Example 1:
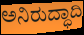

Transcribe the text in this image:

ಅನಿರುದ್ಧಾದಿ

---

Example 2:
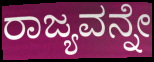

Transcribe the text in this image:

ರಾಜ್ಯವನ್ನೇ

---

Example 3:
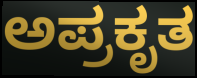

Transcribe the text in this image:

ಅಪ್ರಕೃತ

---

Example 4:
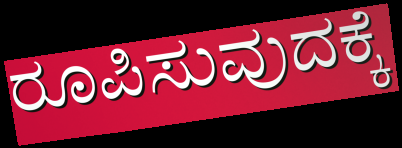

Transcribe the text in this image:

ರೂಪಿಸುವುದಕ್ಕೆ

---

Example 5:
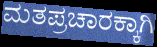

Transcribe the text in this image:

ಮತಪ್ರಚಾರಕ್ಕಾಗಿ